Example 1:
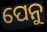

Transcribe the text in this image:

ପେନୁ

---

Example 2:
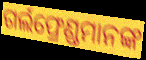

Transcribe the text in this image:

ଗର୍ଲଫ୍ରେଣ୍ଡମାନଙ୍କ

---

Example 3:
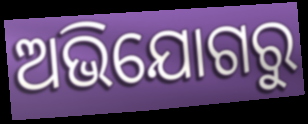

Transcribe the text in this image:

ଅଭିଯୋଗରୁ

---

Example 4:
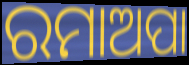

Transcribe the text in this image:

ରମାଅପା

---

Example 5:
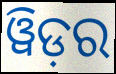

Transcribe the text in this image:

ୱିଡ଼ର